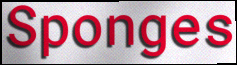
Sponges